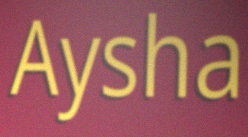
Aysha